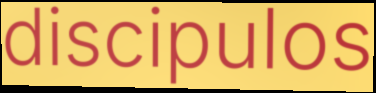
discipulos